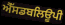
ਐੱਸਡਬਲਿਊਪੀ